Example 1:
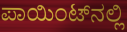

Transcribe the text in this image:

ಪಾಯಿಂಟ್‌ನಲ್ಲಿ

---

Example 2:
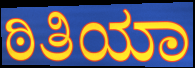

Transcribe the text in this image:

ಠಿತಿಯಾ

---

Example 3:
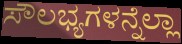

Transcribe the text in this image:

ಸೌಲಭ್ಯಗಳನ್ನೆಲ್ಲಾ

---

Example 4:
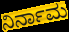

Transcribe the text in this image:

ನಿರ್ನಾಮ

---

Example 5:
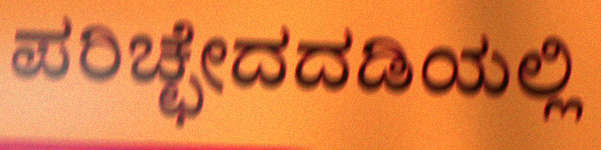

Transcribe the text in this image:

ಪರಿಚ್ಛೇದದಡಿಯಲ್ಲಿ